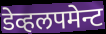
डेव्हलपमेन्ट